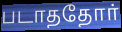
படாததோர்